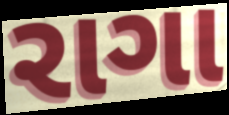
રાગા